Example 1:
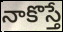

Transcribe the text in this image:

నాకొస్తే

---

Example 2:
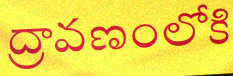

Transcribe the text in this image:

ద్రావణంలోకి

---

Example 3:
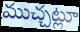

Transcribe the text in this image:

ముచ్చట్లూ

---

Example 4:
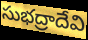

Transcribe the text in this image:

సుభద్రాదేవి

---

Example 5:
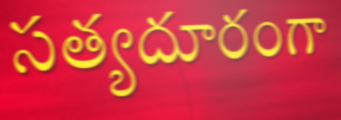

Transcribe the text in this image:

సత్యదూరంగా